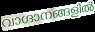
വാഗ്ദാനങ്ങളിൽ